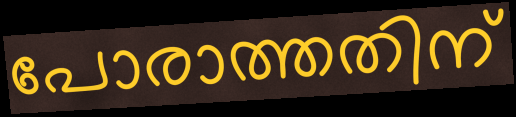
പോരാത്തതിന്